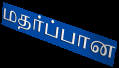
மதர்ப்பான